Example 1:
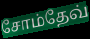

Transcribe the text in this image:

சோம்தேவ்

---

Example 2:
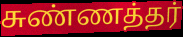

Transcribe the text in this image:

சுண்ணத்தர்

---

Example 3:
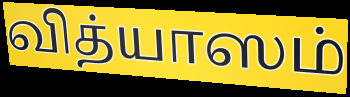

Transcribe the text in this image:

வித்யாஸம்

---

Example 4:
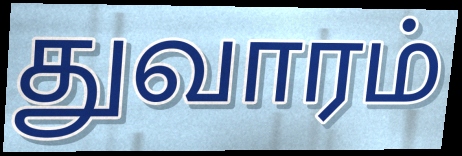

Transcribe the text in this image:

துவாரம்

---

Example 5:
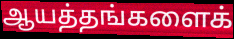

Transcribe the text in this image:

ஆயத்தங்களைக்